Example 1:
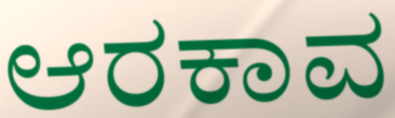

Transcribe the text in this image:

ಆರಕಾವ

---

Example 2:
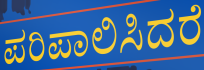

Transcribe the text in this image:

ಪರಿಪಾಲಿಸಿದರೆ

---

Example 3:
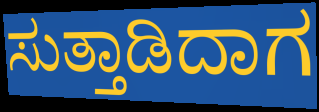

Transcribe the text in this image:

ಸುತ್ತಾಡಿದಾಗ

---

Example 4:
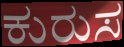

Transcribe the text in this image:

ಕುರುಸ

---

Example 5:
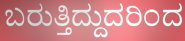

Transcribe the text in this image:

ಬರುತ್ತಿದ್ದುದರಿಂದ